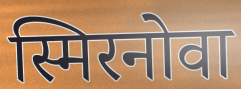
स्मिरनोवा